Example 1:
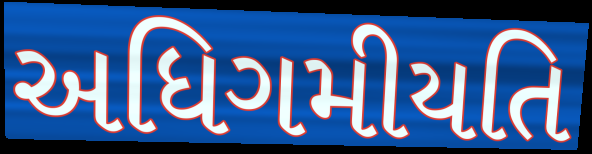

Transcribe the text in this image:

અધિગમીયતિ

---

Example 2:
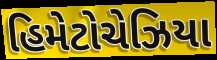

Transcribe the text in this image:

હિમેટોચેઝિયા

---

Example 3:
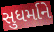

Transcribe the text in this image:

સુધર્માને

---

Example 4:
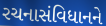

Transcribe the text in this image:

રચનાસંવિધાનને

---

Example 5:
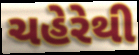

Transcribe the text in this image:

ચહેરેથી